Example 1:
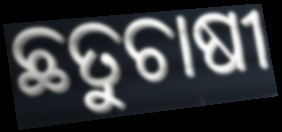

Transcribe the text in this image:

ଛତୁଚାଷୀ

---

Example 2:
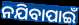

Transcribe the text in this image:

ନଯିବାପାଇଁ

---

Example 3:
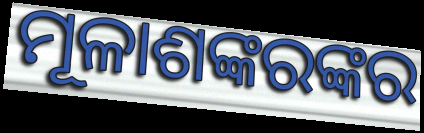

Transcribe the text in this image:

ମୂଳାଶଙ୍କରଙ୍କର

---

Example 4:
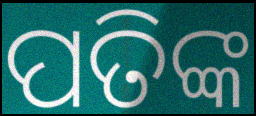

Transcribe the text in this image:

ପତିଙ୍କ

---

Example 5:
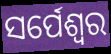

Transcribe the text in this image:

ସର୍ପେଶ୍ୱର